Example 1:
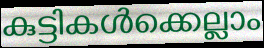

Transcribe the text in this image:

കുട്ടികൾക്കെല്ലാം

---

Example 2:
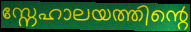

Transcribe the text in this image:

സ്നേഹാലയത്തിന്റെ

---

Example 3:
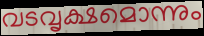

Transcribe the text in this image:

വടവൃക്ഷമൊന്നും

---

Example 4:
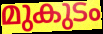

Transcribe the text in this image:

മുകുടം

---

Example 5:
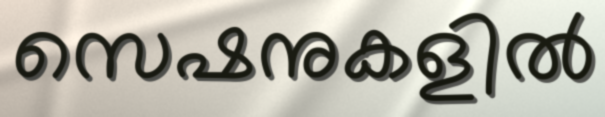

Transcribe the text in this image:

സെഷനുകളിൽ